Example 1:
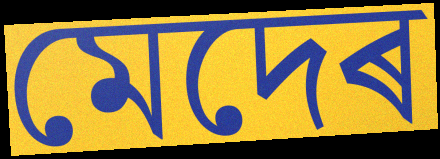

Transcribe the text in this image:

মেদেৰ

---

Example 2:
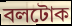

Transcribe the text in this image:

বলটোক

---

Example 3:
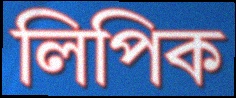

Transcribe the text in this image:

লিপিক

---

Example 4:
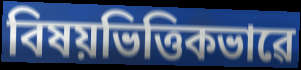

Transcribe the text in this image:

বিষয়ভিত্তিকভাৱে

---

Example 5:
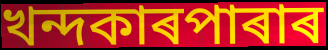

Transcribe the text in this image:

খন্দকাৰপাৰাৰ